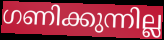
ഗണിക്കുന്നില്ല